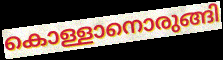
കൊള്ളാനൊരുങ്ങി